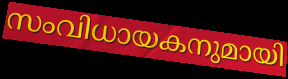
സംവിധായകനുമായി